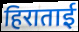
हिराताई